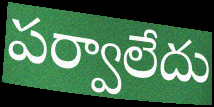
పర్వాలేదు